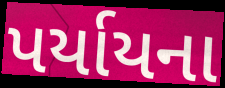
પર્યાયના